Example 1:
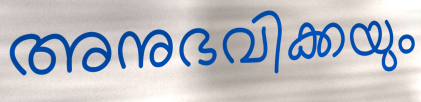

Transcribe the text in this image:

അനുഭവിക്കയും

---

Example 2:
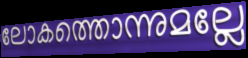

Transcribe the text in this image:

ലോകത്തൊന്നുമല്ലേ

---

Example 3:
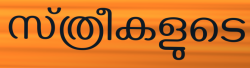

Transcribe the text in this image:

സ്‌ത്രീകളുടെ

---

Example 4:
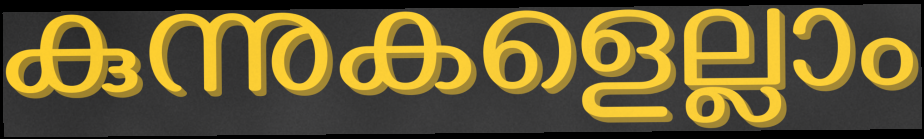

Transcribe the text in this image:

കുന്നുകളെല്ലാം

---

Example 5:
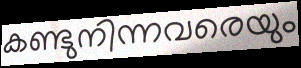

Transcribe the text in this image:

കണ്ടുനിന്നവരെയും